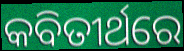
କବିତୀର୍ଥରେ